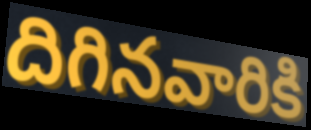
దిగినవారికి